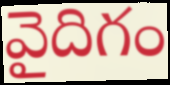
వైదిగం